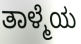
ತಾಳ್ಮೆಯ